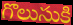
గొలుసుకి